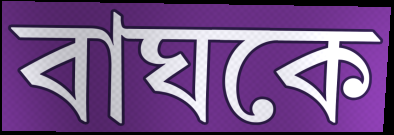
বাঘকে